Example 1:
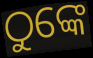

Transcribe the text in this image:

ଠୁଙ୍କେ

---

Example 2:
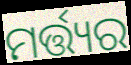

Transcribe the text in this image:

ମର୍ତ୍ତ୍ୟର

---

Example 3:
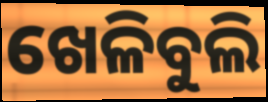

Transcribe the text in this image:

ଖେଳିବୁଲି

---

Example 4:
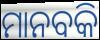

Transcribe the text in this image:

ମାନବକି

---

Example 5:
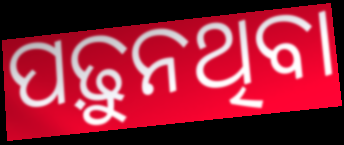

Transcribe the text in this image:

ପଢ଼ୁନଥିବା